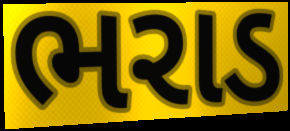
ભરાડ